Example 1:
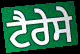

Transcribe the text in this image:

ਟੈਰੇਸੇ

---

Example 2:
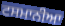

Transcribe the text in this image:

ਟਸਮਾਨੀਆ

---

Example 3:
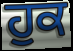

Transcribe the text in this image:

ਹੁਕ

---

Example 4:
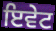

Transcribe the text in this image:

ਇਵੇਟ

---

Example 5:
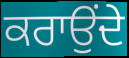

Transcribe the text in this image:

ਕਰਾਉਂਦੇ